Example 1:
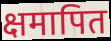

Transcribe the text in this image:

क्षमापित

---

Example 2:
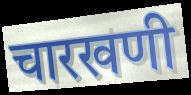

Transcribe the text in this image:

चारखणी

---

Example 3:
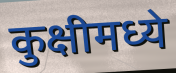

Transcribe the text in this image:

कुक्षीमध्ये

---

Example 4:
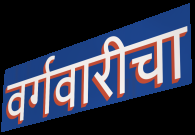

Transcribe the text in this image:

वर्गवारीचा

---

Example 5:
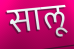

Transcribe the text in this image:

सालू